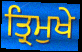
ਤ੍ਰਿਮੁਖੇ